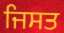
ਜਿਸਤ